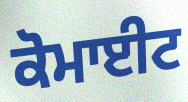
ਕੋਮਾਈਟ